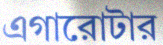
এগারোটার